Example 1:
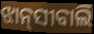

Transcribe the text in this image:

ଝାନ୍‌ସୀବାଲି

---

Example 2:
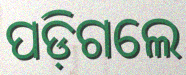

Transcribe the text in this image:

ପଡ଼ିଗଲେ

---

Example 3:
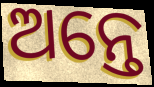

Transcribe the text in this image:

ଅନ୍ତେ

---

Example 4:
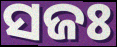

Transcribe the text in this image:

ସଜଃ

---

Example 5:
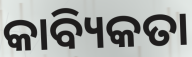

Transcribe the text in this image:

କାବ୍ୟିକତା